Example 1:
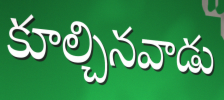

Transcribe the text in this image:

కూల్చినవాడు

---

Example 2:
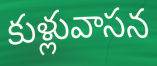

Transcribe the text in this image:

కుళ్లువాసన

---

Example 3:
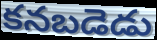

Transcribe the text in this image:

కనబడెడు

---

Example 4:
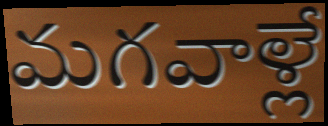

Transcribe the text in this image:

మగవాళ్లే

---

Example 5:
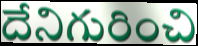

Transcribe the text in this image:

దేనిగురించి